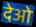
देओ